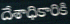
దేశాధికారికి